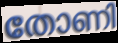
തോണി